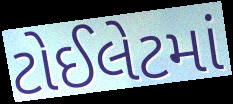
ટોઈલેટમાં